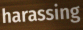
harassing